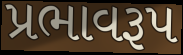
પ્રભાવરૂપ